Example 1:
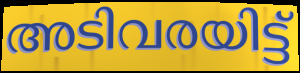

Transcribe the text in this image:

അടിവരയിട്ട്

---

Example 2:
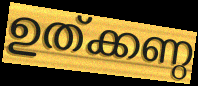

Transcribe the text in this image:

ഉത്ക്കണ്ഠ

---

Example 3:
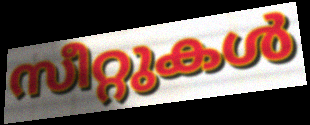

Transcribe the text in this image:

സീറ്റുകൾ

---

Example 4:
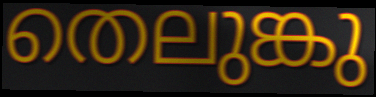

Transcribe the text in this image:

തെലുങ്കു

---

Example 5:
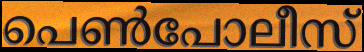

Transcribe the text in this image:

പെൺപോലീസ്